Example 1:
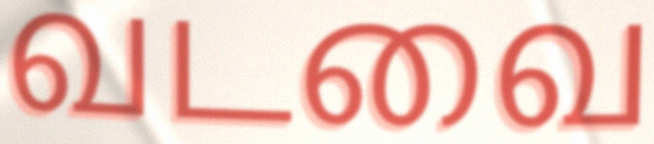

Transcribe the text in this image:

வடவை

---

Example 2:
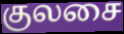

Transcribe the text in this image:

குலசை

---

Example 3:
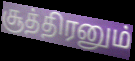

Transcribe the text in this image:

சூத்திரனும்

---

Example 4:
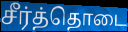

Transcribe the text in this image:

சீர்த்தொடை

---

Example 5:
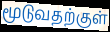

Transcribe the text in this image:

மூடுவதற்குள்